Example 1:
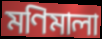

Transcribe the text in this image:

মণিমালা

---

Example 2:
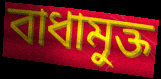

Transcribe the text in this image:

বাধামুক্ত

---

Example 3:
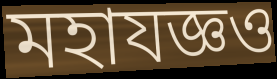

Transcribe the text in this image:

মহাযজ্ঞও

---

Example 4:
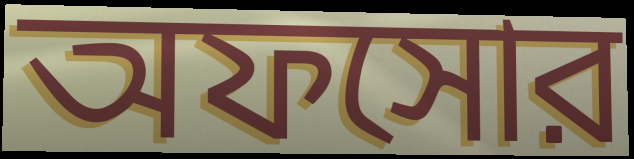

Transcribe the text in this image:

অফসোর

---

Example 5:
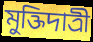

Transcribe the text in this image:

মুক্তিদাত্রী